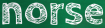
norse